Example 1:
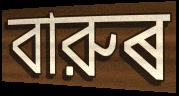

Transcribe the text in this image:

বাৰুৰ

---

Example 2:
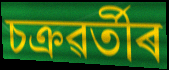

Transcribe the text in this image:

চক্ৰৱৰ্তীৰ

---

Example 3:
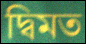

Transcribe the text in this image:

দ্বিমত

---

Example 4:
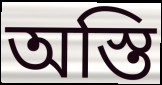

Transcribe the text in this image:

অস্তি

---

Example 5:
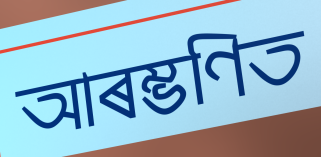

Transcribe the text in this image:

আৰম্ভণিত